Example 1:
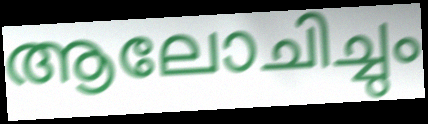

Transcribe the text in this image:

ആലോചിച്ചും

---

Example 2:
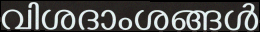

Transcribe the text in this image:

വിശദാംശങ്ങൾ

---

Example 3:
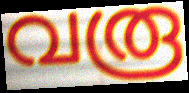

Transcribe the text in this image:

വരൂ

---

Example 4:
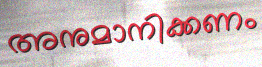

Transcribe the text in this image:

അനുമാനിക്കണം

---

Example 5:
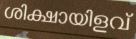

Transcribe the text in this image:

ശിക്ഷായിളവ്